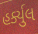
હર્ક્યુલ